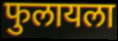
फुलायला